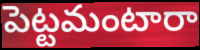
పెట్టమంటారా